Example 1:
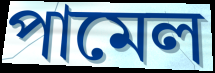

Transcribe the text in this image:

পামেল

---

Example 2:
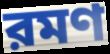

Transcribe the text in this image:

রমণ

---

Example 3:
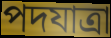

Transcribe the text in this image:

পদযাত্রা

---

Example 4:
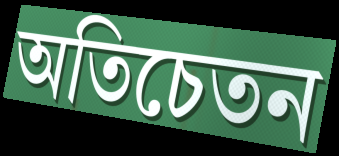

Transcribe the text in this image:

অতিচেতন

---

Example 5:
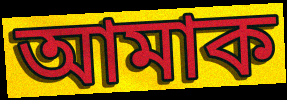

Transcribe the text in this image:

আমাক